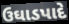
ઉઘાડપાદે